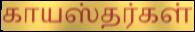
காயஸ்தர்கள்